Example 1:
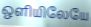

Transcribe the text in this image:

ஒளியிலேயே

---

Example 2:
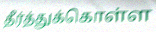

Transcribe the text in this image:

தீர்த்துக்கொள்ள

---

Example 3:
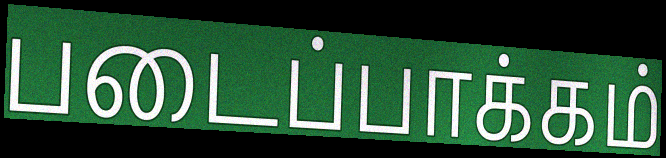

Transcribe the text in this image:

படைப்பாக்கம்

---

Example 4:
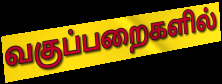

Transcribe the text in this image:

வகுப்பறைகளில்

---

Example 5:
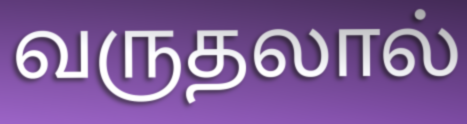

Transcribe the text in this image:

வருதலால்